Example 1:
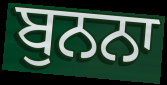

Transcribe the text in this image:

ਬੁਨਨਾ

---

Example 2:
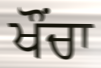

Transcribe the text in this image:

ਖੌੰਚਾ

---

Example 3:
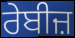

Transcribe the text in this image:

ਰੇਬੀਜ਼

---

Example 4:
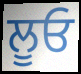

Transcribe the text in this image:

ਲੂਓ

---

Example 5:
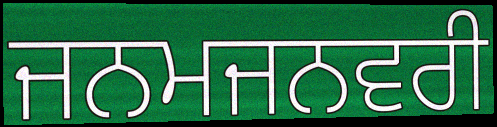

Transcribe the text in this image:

ਜਨਮਜਨਵਰੀ